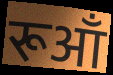
रूआँ